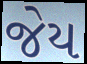
જેય